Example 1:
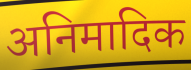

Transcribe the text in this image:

अनिमादिक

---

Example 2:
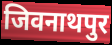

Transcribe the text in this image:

जिवनाथपुर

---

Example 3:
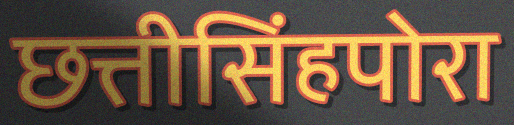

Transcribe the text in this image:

छत्तीसिंहपोरा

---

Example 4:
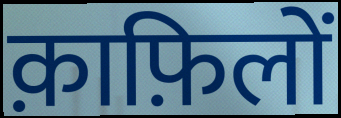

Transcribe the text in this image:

क़ाफ़िलों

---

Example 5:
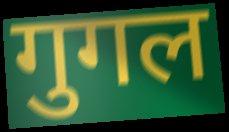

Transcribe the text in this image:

गुगल